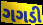
ગગડી